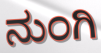
ನುಂಗಿ